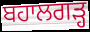
ਬਹਾਲਗੜ੍ਹ